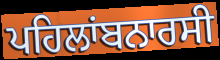
ਪਹਿਲਾਂਬਨਾਰਸੀ